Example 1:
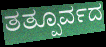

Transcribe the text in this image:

ತತ್ಪೂರ್ವದ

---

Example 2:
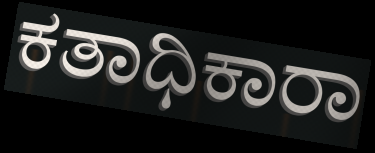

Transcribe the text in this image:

ಕತಾಧಿಕಾರಾ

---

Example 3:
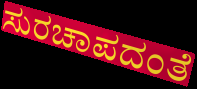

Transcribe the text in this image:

ಸುರಚಾಪದಂತೆ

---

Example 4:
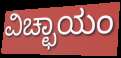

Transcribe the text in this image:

ವಿಚ್ಛಾಯಂ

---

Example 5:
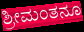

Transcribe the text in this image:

ಶ್ರೀಮಂತನೂ